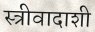
स्त्रीवादाशी